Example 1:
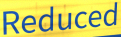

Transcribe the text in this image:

Reduced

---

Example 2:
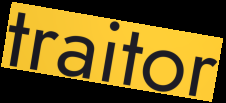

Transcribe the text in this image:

traitor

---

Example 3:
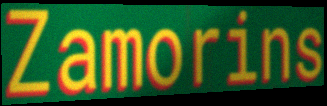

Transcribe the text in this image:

Zamorins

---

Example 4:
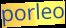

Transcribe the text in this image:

porleo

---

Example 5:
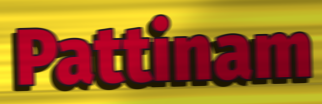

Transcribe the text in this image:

Pattinam